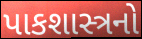
પાકશાસ્ત્રનો